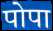
पोपा